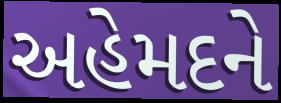
અહેમદને